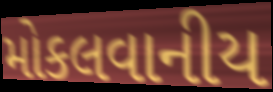
મોકલવાનીય